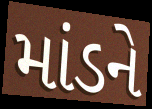
માંડને